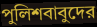
পুলিশবাবুদের